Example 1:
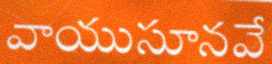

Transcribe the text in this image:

వాయుసూనవే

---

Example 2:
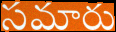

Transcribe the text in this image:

సమారు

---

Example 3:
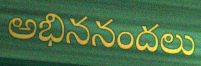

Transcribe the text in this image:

అభిననందలు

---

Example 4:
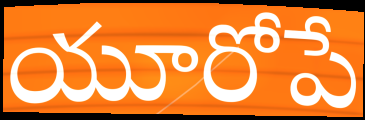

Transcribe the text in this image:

యూరోపే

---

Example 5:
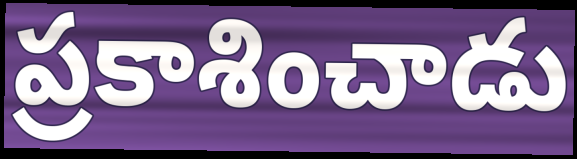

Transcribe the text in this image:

ప్రకాశించాడు